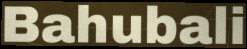
Bahubali